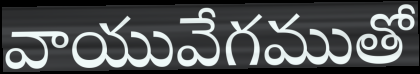
వాయువేగముతో